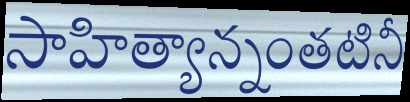
సాహిత్యాన్నంతటినీ